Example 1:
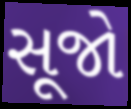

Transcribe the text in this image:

સૂજો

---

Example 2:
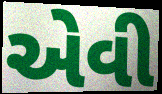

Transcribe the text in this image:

એવી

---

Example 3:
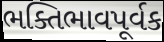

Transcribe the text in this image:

ભક્તિભાવપૂર્વક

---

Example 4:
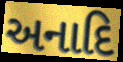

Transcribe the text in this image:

અનાદિ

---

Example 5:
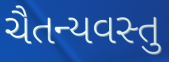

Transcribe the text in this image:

ચૈતન્યવસ્તુ